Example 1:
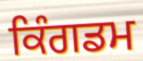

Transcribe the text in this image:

ਕਿੰਗਡਮ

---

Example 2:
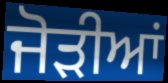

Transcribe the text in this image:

ਜੋਡ਼ੀਆਂ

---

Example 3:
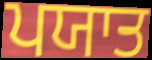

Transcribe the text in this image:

ਪਯਾਤ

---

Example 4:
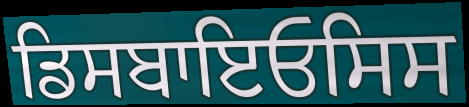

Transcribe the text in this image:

ਡਿਸਬਾਇਓਸਿਸ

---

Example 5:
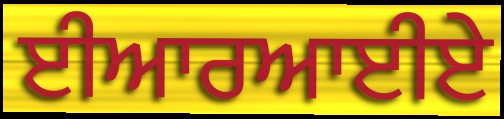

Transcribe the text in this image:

ਈਆਰਆਈਏ